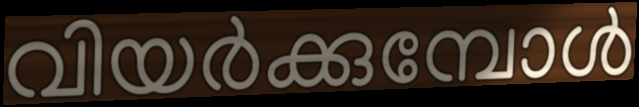
വിയർക്കുമ്പോൾ